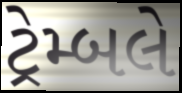
ટ્રેમ્બલે